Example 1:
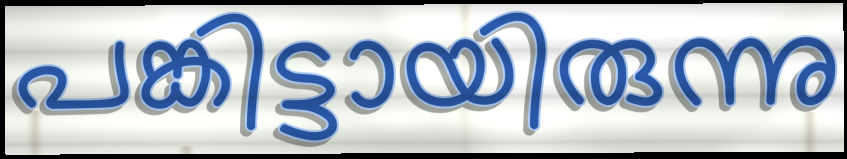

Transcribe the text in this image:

പങ്കിട്ടായിരുന്നു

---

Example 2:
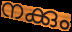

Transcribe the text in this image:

നക്കും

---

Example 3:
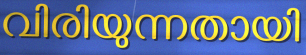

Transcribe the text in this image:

വിരിയുന്നതായി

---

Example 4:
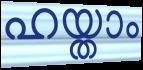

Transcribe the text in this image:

ഹയ്താം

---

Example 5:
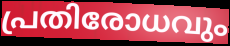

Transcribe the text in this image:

പ്രതിരോധവും